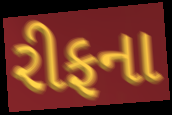
રીફના